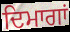
ਦਿਮਾਗਾਂ